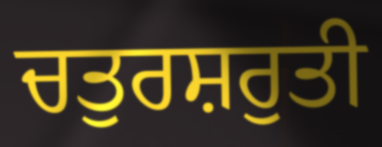
ਚਤੁਰਸ਼ਰੁਤੀ